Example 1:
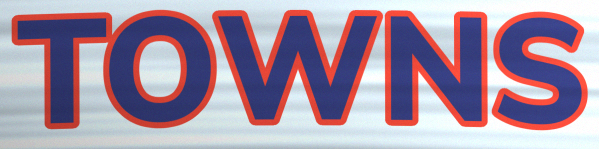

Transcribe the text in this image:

TOWNS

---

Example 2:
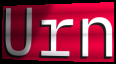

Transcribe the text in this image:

Urn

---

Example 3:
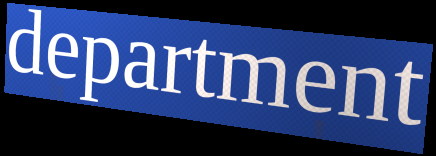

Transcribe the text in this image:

department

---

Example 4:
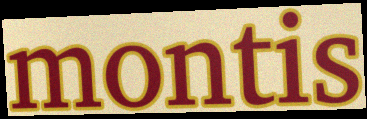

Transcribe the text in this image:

montis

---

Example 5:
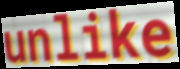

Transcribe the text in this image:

unlike